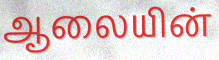
ஆலையின்